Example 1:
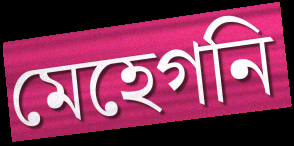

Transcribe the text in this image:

মেহেগনি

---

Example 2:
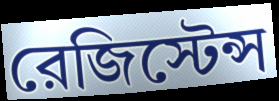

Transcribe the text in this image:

রেজিস্টেন্স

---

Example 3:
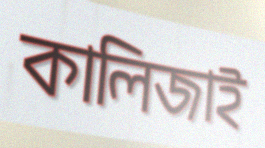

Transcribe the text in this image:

কালিজাই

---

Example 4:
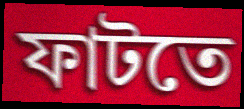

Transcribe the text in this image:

ফাটতে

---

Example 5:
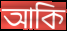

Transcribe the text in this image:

আকি